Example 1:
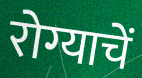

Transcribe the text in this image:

रोग्याचें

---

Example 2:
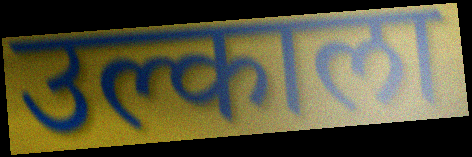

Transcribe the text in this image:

उल्काला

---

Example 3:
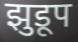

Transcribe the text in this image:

झुडूप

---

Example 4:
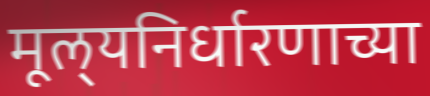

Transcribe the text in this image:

मूल्यनिर्धारणाच्या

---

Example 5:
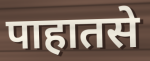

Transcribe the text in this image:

पाहातसे